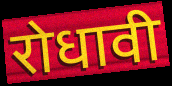
रोधावी